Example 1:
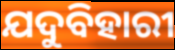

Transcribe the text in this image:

ଯଦୁବିହାରୀ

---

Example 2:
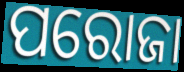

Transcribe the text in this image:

ପରୋଜା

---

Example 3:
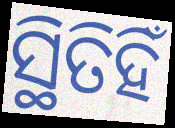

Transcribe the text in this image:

ସ୍ଥିତିହିଁ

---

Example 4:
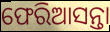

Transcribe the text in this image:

ଫେରିଆସନ୍ତା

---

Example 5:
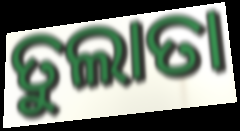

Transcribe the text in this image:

ତୁଲାତା